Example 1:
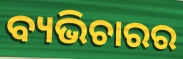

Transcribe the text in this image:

ବ୍ୟଭିଚାରର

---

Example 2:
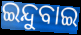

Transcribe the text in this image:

ଇନ୍ଦୁବାଇ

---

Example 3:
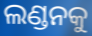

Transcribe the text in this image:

ଲଣ୍ଡନକୁ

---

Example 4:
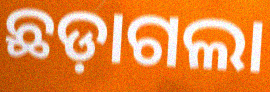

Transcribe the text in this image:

ଛଡ଼ାଗଲା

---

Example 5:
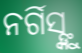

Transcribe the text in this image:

ନର୍ଗିସ୍ଙ୍କୁ